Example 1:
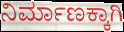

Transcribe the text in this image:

ನಿರ್ಮಾಣಕ್ಕಾಗಿ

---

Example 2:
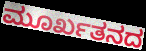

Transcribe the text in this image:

ಮೂರ್ಖತನದ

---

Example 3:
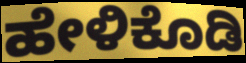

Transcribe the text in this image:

ಹೇಳಿಕೊಡಿ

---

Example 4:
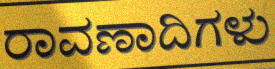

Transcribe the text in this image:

ರಾವಣಾದಿಗಳು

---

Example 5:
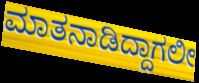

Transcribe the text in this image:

ಮಾತನಾಡಿದ್ದಾಗಲೀ